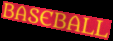
BASEBALL